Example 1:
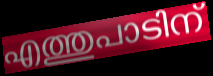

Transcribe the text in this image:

എത്തുപാടിന്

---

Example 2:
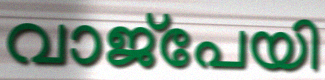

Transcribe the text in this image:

വാജ്പേയി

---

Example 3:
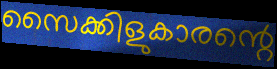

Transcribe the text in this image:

സൈക്കിളുകാരന്റെ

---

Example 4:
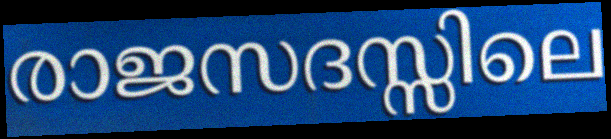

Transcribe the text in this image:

രാജസദസ്സിലെ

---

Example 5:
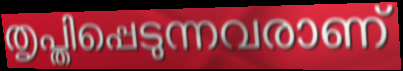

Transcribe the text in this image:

തൃപ്തിപ്പെടുന്നവരാണ്